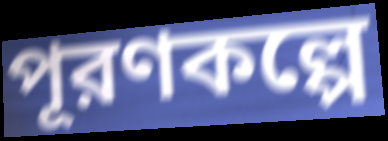
পূরণকল্পে